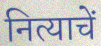
नित्याचें